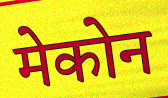
मेकोन